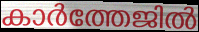
കാർത്തേജിൽ